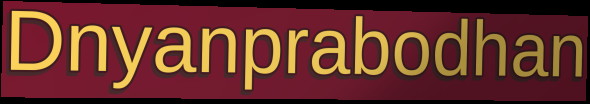
Dnyanprabodhan